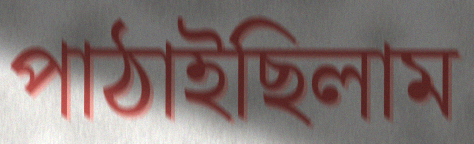
পাঠাইছিলাম